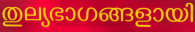
തുല്യഭാഗങ്ങളായി